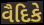
વૈદિકે